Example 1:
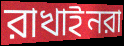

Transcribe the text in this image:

রাখাইনরা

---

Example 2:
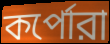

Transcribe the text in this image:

কর্পোরা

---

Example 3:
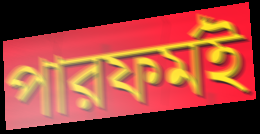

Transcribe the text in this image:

পারফর্মই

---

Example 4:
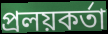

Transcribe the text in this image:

প্রলয়কর্তা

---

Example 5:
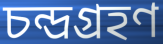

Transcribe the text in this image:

চন্দ্রগ্রহণ